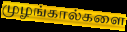
முழங்கால்களை